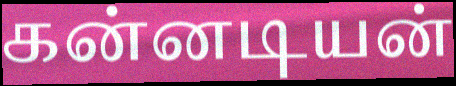
கன்னடியன்